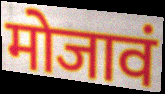
मोजावं